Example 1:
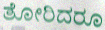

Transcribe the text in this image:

ತೋರಿದರೂ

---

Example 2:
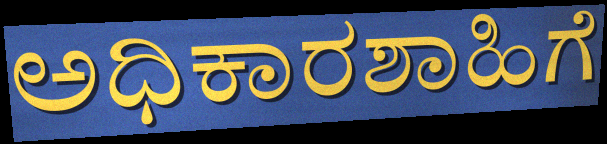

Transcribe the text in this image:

ಅಧಿಕಾರಶಾಹಿಗೆ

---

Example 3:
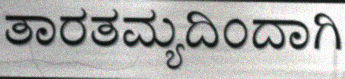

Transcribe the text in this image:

ತಾರತಮ್ಯದಿಂದಾಗಿ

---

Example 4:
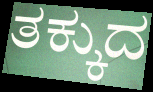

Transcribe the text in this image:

ತಕ್ಕುದ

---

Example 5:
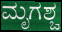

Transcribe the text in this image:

ಮೃಗಶ್ಚ